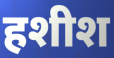
हशीश